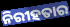
ନିରୀହତାର